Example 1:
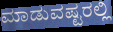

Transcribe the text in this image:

ಮಾಡುವಷ್ಟರಲ್ಲಿ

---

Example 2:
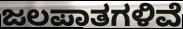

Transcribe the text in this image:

ಜಲಪಾತಗಳಿವೆ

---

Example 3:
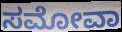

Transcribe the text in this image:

ಸಮೋವಾ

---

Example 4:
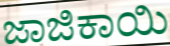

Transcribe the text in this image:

ಜಾಜಿಕಾಯಿ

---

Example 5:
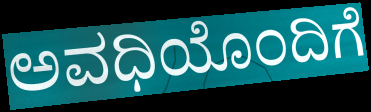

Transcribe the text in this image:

ಅವಧಿಯೊಂದಿಗೆ